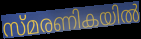
സ്മരണികയിൽ